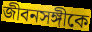
জীবনসঙ্গীকে